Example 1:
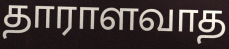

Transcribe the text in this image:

தாராளவாத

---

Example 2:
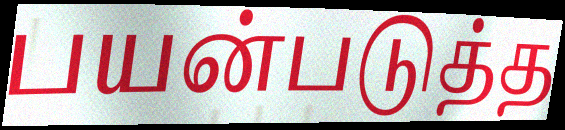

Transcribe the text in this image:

பயன்படுத்த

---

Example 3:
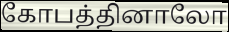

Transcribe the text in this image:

கோபத்தினாலோ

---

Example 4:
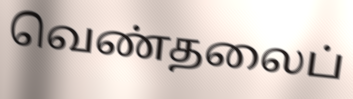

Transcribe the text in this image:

வெண்தலைப்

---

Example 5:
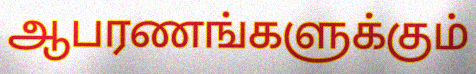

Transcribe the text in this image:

ஆபரணங்களுக்கும்